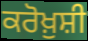
ਕਰੋਖ਼ੁਸ਼ੀ